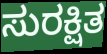
ಸುರಕ್ಷಿತ